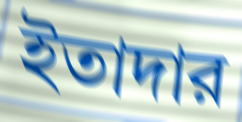
ইতাদার